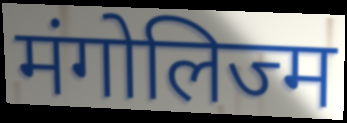
मंगोलिज्म